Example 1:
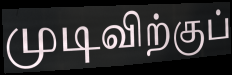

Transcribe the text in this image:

முடிவிற்குப்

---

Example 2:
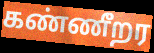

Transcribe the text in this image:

கண்ணீறர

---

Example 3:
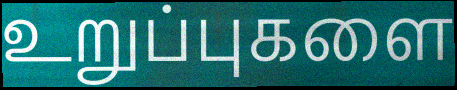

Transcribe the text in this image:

உறுப்புகளை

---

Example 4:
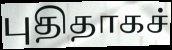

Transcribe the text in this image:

புதிதாகச்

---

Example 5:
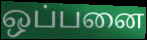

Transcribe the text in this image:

ஒப்பனை